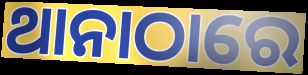
ଥାନାଠାରେ